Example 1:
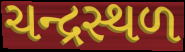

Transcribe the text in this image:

ચન્દ્રસ્થળ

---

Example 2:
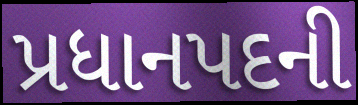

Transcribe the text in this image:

પ્રધાનપદની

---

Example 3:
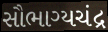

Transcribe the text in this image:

સૌભાગ્યચંદ્ર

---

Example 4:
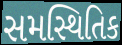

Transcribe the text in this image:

સમસ્થિતિક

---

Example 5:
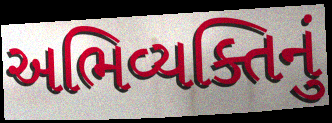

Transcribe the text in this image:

અભિવ્યક્તિનું